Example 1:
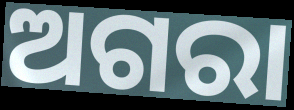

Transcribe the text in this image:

ଅଗରା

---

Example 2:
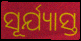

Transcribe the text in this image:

ସୂର୍ଯ୍ୟାସ୍ତ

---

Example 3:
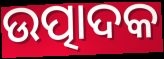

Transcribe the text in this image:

ଉତ୍ପାଦକ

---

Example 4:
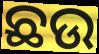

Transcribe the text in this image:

ଛଉ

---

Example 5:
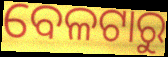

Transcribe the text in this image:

ବେଳଟାରୁ